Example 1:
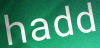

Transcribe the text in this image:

hadd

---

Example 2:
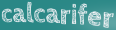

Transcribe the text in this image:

calcarifer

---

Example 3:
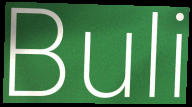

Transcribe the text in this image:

Buli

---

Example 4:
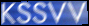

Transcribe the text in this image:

KSSVV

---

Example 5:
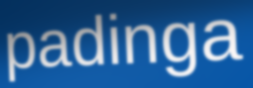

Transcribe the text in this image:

padinga